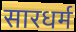
सारधर्म